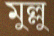
মুল্লু